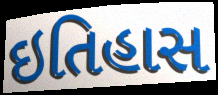
ઇતિહાસ